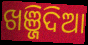
ଖଞ୍ଜିଦିଆ